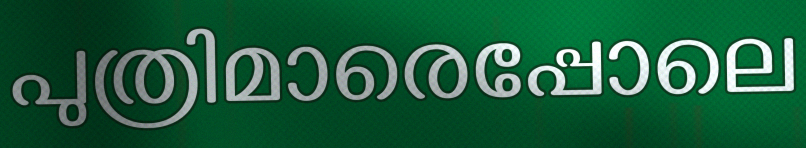
പുത്രിമാരെപ്പോലെ